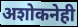
अशोकनेही